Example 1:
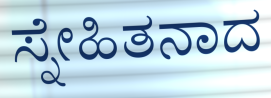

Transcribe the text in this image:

ಸ್ನೇಹಿತನಾದ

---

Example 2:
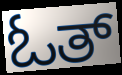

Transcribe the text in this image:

ಓತ್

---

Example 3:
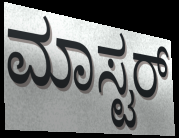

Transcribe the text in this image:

ಮಾಸ್ಟರ್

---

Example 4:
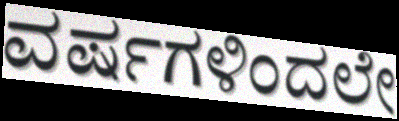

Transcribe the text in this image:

ವರ್ಷಗಳಿಂದಲೇ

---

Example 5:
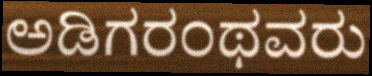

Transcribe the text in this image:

ಅಡಿಗರಂಥವರು